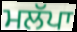
ਮਲੱਪਾ